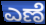
ಎಣೆ